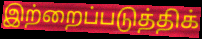
இற்றைப்படுத்திக்